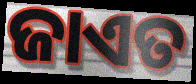
ଜାଏତ